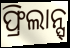
ଫ୍ରିଲାନ୍ସ୍